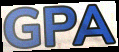
GPA